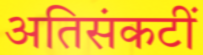
अतिसंकटीं